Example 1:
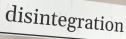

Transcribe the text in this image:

disintegration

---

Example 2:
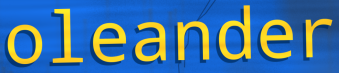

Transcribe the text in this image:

oleander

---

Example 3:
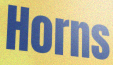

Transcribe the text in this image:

Horns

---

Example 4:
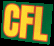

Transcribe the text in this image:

CFL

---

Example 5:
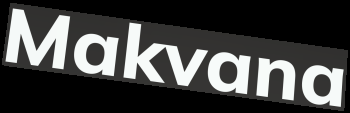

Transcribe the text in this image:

Makvana